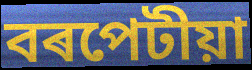
বৰপেটীয়া